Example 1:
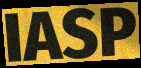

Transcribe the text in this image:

IASP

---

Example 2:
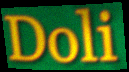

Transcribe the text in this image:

Doli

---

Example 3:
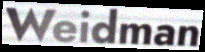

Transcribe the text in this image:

Weidman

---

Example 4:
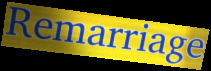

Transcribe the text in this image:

Remarriage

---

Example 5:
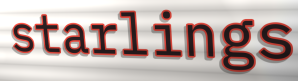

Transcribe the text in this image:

starlings